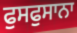
ਫੁਸਫੁਸਾਨਾ